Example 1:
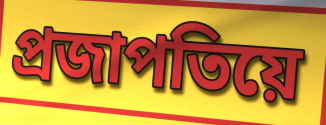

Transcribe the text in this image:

প্ৰজাপতিয়ে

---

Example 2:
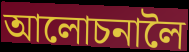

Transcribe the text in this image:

আলোচনালৈ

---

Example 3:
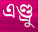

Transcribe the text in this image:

এণ্ড্ৰু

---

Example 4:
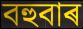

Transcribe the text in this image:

বহুবাৰ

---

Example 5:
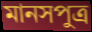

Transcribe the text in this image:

মানসপুত্ৰ